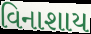
વિનાશાય